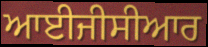
ਆਈਜੀਸੀਆਰ